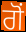
ਗੋਂ